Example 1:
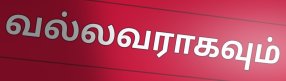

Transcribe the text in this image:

வல்லவராகவும்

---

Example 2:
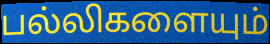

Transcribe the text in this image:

பல்லிகளையும்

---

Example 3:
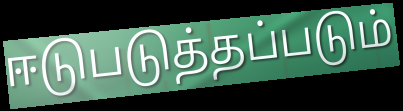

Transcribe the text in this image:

ஈடுபடுத்தப்படும்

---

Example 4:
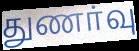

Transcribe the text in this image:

துணர்வு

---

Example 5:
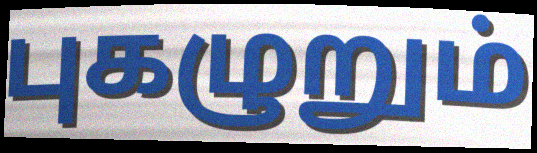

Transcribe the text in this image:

புகழுறும்